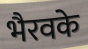
भैरवके